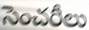
సెంచరీలు